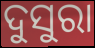
ଦୁସୁରା